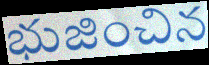
భుజించిన